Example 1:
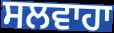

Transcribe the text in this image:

ਸਲਵਾਹਾ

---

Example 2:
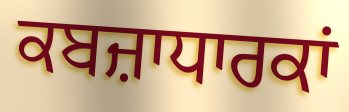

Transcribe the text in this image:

ਕਬਜ਼ਾਧਾਰਕਾਂ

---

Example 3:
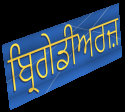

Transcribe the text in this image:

ਬ੍ਰਿਗੇਡੀਅਰਜ਼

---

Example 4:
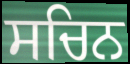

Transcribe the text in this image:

ਸਚਿਨ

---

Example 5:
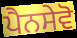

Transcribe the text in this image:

ਪੈਨਸੇਵੋ